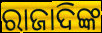
ରାଜାଦିଙ୍କ